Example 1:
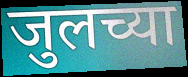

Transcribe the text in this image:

जुलच्या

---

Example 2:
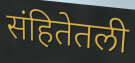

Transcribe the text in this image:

संहितेतली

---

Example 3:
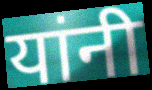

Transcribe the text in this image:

यांनी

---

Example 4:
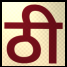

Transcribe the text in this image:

ठी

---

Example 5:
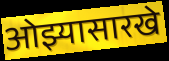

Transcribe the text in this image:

ओझ्यासारखे